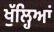
ਖੁੱਲ੍ਹਿਆਂ